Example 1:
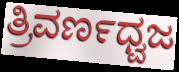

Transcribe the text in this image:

ತ್ರಿವರ್ಣಧ್ವಜ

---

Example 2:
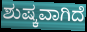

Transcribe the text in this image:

ಶುಷ್ಕವಾಗಿದೆ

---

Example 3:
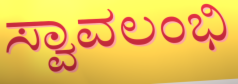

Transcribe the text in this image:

ಸ್ವಾವಲಂಭಿ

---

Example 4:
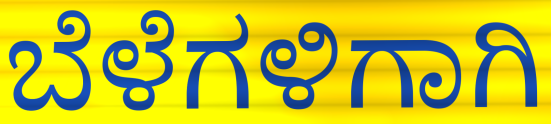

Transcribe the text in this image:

ಬೆಳೆಗಳಿಗಾಗಿ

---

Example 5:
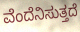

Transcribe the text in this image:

ವೆಂದೆನಿಸುತ್ತದೆ